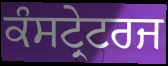
ਕੰਸਟ੍ਰੇਟਰਜ